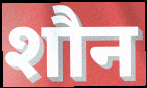
शौन